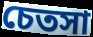
চেতসা